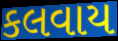
કલવાય